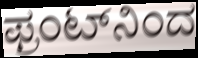
ಫ್ರಂಟ್‌ನಿಂದ